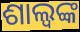
ଶାଲ୍ୱଙ୍କ